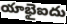
యాభైఐదు